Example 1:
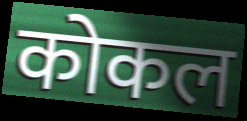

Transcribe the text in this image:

कोकल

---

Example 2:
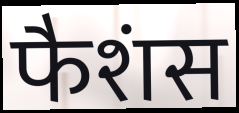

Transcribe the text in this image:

फैशंस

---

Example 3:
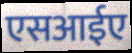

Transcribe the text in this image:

एसआईए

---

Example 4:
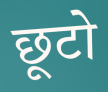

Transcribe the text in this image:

छूटो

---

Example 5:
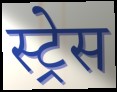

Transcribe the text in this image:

स्ट्रेस